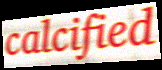
calcified